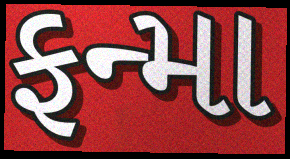
ફન્મા